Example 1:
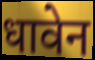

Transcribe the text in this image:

धावेन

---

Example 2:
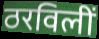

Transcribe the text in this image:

ठरविलीं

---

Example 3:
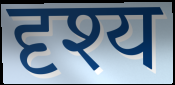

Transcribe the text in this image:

दृश्‍य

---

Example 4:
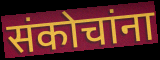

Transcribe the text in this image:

संकोचांना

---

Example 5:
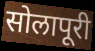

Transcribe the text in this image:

सोलापूरी